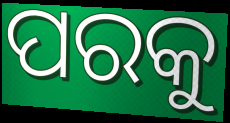
ପରକୁ